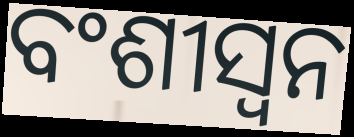
ବଂଶୀସ୍ୱନ